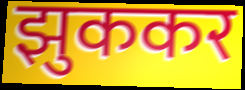
झुककर